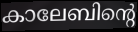
കാലേബിന്റെ